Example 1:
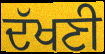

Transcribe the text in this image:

ਦੱਖਣੀ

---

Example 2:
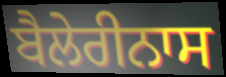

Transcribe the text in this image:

ਬੈਲੇਰੀਨਾਸ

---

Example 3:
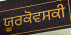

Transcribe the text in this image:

ਯੂਰਕੋਵਸਕੀ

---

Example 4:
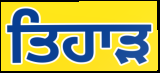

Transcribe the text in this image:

ਤਿਹਾੜ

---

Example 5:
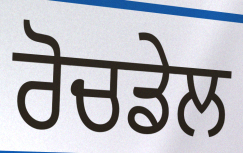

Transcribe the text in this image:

ਰੋਚਡੇਲ